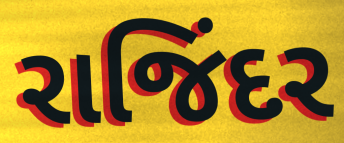
રાજિંદર